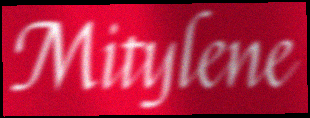
Mitylene